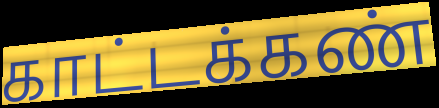
காட்டக்கண்